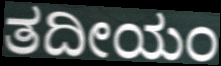
ತದೀಯಂ